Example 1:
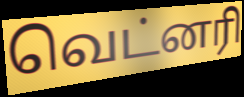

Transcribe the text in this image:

வெட்னரி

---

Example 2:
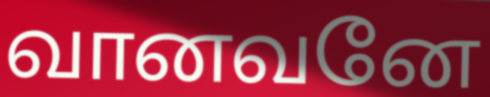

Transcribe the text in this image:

வானவனே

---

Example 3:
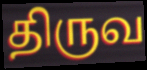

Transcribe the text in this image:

திருவ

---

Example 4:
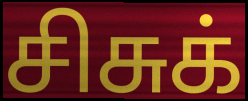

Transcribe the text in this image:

சிசுக்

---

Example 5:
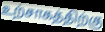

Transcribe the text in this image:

உற்சாகத்திற்கு